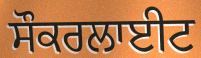
ਸੌਕਰਲਾਈਟ